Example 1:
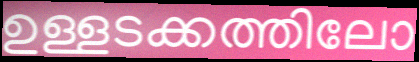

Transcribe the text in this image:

ഉള്ളടക്കത്തിലോ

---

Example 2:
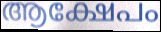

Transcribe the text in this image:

ആക്ഷേപം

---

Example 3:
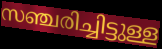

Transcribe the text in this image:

സഞ്ചരിച്ചിട്ടുള്ള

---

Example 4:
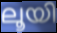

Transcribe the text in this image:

ലൂയി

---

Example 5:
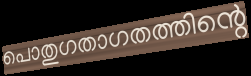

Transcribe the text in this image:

പൊതുഗതാഗതത്തിന്റെ